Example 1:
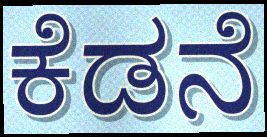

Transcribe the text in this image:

ಕೆಡನೆ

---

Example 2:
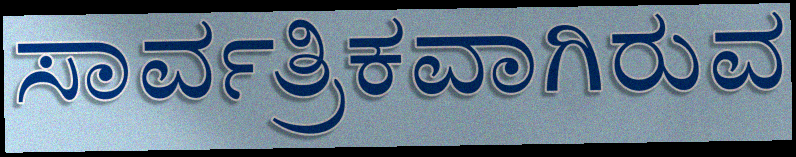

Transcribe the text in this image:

ಸಾರ್ವತ್ರಿಕವಾಗಿರುವ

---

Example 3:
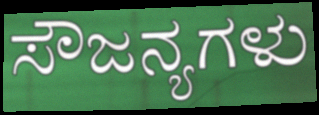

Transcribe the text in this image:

ಸೌಜನ್ಯಗಳು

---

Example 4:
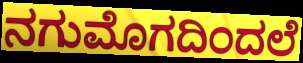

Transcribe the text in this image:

ನಗುಮೊಗದಿಂದಲೆ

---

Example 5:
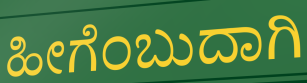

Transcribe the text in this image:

ಹೀಗೆಂಬುದಾಗಿ